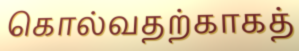
கொல்வதற்காகத்